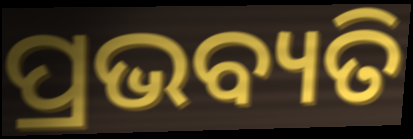
ପ୍ରଭବ୍ୟତି